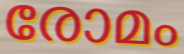
രോമം